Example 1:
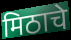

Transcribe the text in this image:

मिठाचे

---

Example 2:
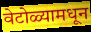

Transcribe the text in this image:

वेटोळ्यामधून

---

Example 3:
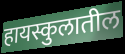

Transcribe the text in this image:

हायस्कुलातील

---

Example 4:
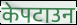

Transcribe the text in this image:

केपटाउन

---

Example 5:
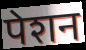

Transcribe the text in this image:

पेशन